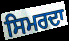
ਸਿਮਰਦਾ